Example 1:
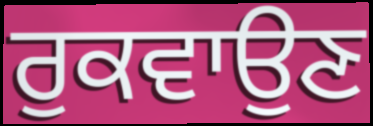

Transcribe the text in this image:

ਰੁਕਵਾਉਣ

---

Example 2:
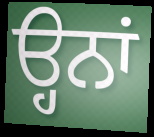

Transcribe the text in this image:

ੳ੍ਹਨਾਂ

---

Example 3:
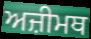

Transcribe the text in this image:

ਅਜ਼ੀਮਥ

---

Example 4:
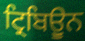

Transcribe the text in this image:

ਟ੍ਰਿਬਿਉੂਨ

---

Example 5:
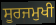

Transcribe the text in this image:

ਸੂਰਜਮੁਖੀ